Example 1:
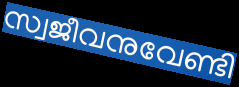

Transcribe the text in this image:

സ്വജീവനുവേണ്ടി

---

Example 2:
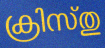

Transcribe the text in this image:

ക്രിസ്‌തു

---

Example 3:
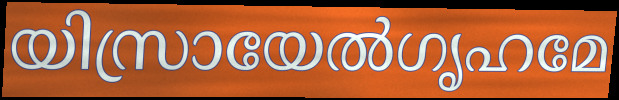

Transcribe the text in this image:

യിസ്രായേൽഗൃഹമേ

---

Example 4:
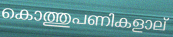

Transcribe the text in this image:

കൊത്തുപണികളാല്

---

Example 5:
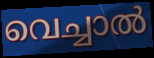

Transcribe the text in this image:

വെച്ചാൽ